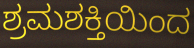
ಶ್ರಮಶಕ್ತಿಯಿಂದ